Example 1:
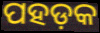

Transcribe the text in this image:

ପହଡ଼କ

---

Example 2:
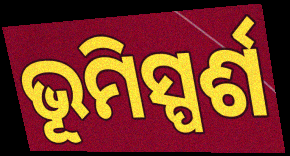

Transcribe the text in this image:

ଭୂମିସ୍ପର୍ଶ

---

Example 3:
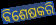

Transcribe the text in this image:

ଵିଶେଷକରି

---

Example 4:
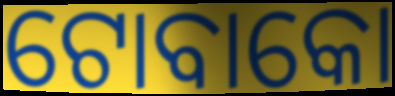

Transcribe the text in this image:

ଟୋବାକୋ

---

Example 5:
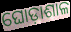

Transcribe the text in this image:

ଘୋଡ଼ାଶାଳ